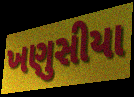
ખણુસીયા